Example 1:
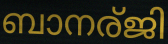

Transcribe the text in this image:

ബാനര്ജി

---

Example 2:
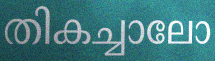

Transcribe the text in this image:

തികച്ചാലോ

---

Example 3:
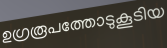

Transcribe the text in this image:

ഉഗ്രരൂപത്തോടുകൂടിയ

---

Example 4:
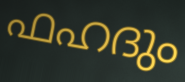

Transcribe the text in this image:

ഫഹദും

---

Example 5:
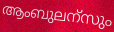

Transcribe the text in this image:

ആംബുലന്സും